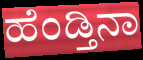
ಹೆಂಡ್ತಿನಾ